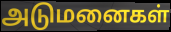
அடுமனைகள்